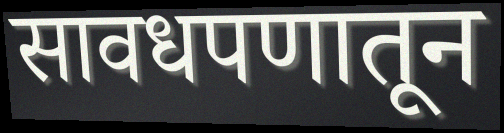
सावधपणातून